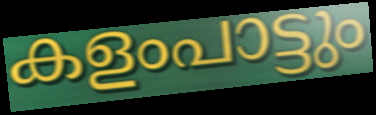
കളംപാട്ടും